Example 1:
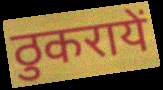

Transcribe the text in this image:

ठुकरायें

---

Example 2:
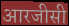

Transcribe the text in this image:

आरजीसी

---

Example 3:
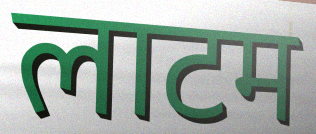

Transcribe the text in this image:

लाटम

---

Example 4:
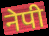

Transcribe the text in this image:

नेपी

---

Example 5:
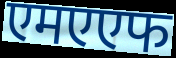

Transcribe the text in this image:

एमएएफ